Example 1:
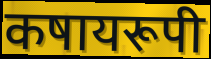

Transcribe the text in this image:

कषायरूपी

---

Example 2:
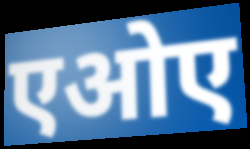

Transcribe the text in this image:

एओए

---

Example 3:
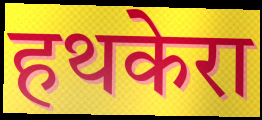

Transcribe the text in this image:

हथकेरा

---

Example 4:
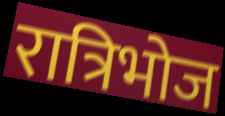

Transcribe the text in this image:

रात्रिभोज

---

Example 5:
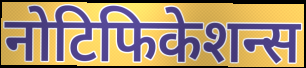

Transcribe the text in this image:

नोटिफिकेशन्स